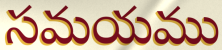
సమయము